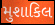
મુશાકિલ